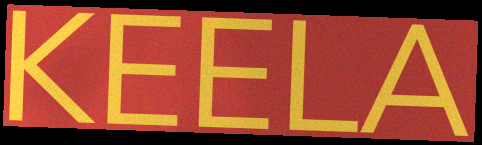
KEELA